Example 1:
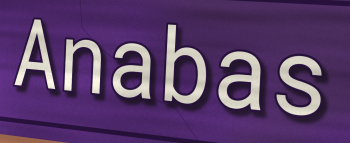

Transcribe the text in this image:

Anabas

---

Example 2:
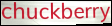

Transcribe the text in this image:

chuckberry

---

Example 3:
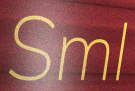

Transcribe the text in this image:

Sml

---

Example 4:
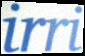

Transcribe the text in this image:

irri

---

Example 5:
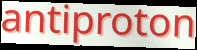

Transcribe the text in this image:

antiproton